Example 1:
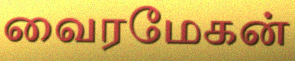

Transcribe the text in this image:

வைரமேகன்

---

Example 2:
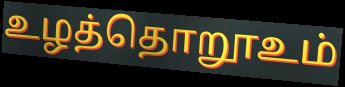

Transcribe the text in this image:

உழத்தொறூஉம்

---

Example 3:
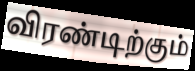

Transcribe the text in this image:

விரண்டிற்கும்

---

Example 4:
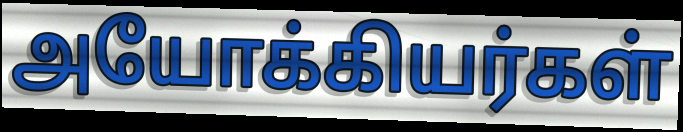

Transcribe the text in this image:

அயோக்கியர்கள்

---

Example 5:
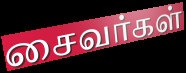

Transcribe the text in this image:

சைவர்கள்